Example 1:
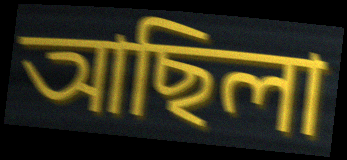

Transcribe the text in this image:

আছিলা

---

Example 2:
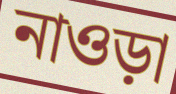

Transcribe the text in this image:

নাওড়া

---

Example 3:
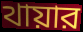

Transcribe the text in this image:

থায়ার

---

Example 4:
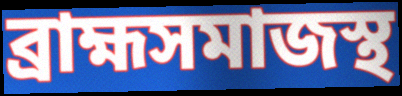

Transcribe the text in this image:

ব্রাহ্মসমাজস্থ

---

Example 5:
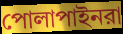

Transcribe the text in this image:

পোলাপাইনরা